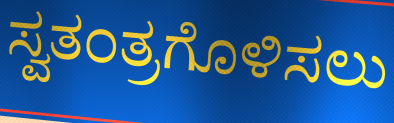
ಸ್ವತಂತ್ರಗೊಳಿಸಲು